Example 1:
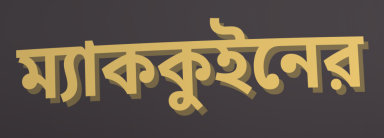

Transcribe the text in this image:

ম্যাককুইনের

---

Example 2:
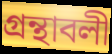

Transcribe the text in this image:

গ্রন্থাবলী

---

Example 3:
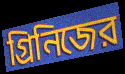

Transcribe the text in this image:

গ্রিনিজের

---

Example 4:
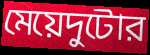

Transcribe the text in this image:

মেয়েদুটোর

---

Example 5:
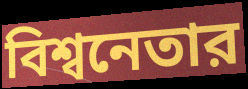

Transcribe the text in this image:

বিশ্বনেতার